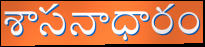
శాసనాధారం